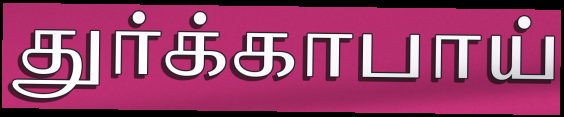
துர்க்காபாய்